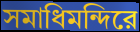
সমাধিমন্দিরে